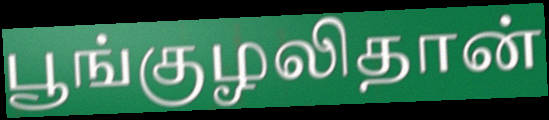
பூங்குழலிதான்